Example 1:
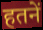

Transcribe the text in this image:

हतनें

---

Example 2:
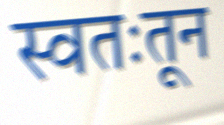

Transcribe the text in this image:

स्वतःतून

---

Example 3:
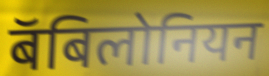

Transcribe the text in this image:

बॅबिलोनियन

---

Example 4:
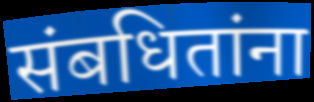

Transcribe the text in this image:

संबधितांना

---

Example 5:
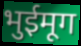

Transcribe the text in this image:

भुईमूग